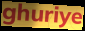
ghuriye